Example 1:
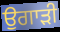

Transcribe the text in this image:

ਉਗਾੜੀ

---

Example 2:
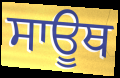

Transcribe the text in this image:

ਸਾਊਥ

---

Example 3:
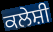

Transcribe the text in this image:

ਕਲੇਸ਼ੀ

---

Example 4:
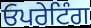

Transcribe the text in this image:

ਓਪਰੇਟਿੰਗ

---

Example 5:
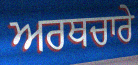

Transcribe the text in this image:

ਅਰਥਚਾਰੇ